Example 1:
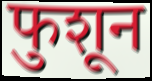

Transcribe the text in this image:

फुशून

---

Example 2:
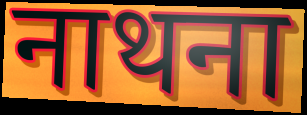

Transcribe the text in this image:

नाथना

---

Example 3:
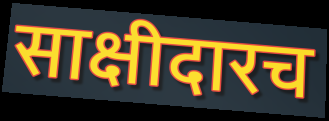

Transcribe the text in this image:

साक्षीदारच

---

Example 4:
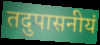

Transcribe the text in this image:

तदुपासनीयं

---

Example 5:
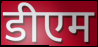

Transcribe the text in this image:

डीएम